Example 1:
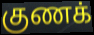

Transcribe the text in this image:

குணக்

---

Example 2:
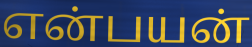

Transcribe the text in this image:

என்பயன்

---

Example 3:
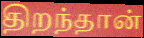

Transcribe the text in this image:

திறந்தான்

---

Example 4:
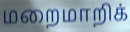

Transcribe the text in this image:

மறைமாறிக்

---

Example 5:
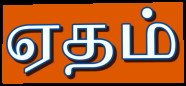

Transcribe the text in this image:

ஏதம்